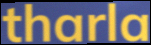
tharla